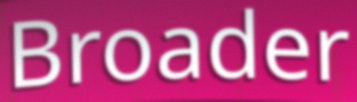
Broader